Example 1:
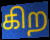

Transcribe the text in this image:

கிற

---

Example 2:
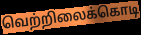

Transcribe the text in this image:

வெற்றிலைக்கொடி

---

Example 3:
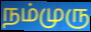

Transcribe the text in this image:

நம்முரு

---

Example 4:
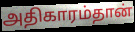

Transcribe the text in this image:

அதிகாரம்தான்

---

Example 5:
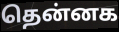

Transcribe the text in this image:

தென்னக